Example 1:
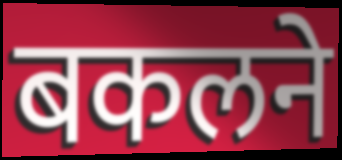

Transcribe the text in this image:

बकलने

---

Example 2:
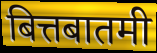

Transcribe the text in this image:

बित्तबातमी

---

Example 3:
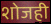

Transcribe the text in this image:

शोजही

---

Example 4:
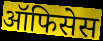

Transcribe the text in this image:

ऑफिसेस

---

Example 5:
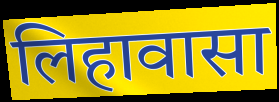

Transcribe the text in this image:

लिहावासा